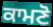
ਕਾਮਣੋ